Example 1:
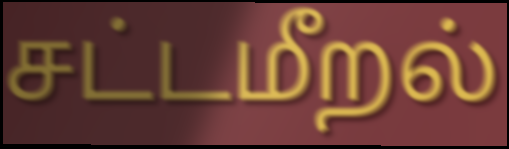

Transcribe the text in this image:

சட்டமீறல்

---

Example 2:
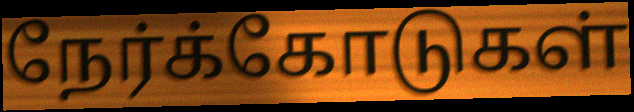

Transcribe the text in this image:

நேர்க்கோடுகள்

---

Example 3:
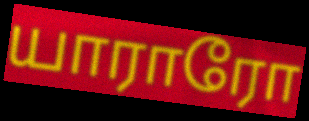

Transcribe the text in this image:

யாராரோ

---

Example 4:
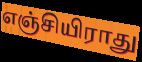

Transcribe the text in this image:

எஞ்சியிராது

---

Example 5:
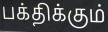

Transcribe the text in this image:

பக்திக்கும்